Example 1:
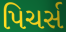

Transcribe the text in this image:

પિચર્સ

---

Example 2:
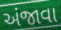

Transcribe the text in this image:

અંજાવા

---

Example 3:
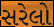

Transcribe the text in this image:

સરેલો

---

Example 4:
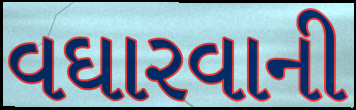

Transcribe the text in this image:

વઘારવાની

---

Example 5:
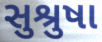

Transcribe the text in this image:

સુશ્રુષા